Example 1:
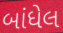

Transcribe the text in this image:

બાંધેલ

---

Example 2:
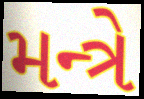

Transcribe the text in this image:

મન્ત્રે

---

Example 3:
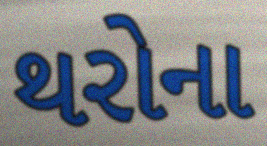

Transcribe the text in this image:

થરોના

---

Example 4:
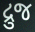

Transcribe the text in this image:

દ્રુજ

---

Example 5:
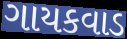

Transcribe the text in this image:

ગાયકવાડ